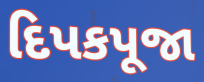
દિપકપૂજા